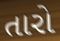
તારો